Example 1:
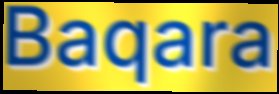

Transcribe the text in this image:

Baqara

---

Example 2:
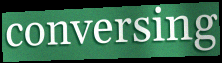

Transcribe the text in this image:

conversing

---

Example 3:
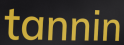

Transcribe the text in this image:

tannin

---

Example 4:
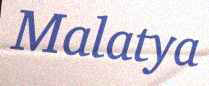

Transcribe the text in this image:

Malatya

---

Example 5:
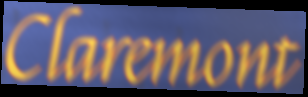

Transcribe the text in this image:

Claremont